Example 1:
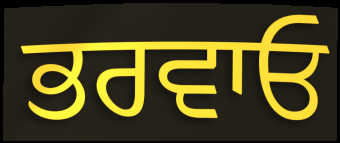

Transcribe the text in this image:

ਭਰਵਾਓ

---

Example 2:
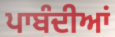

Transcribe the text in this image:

ਪਾਬੰਦੀਆਂ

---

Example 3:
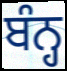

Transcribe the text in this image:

ਬੰਨ੍ਹ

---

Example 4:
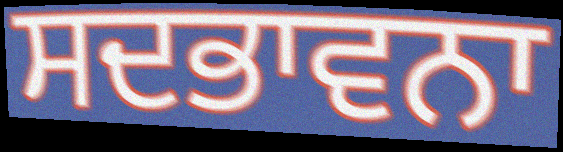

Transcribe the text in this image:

ਸਦਭਾਵਨਾ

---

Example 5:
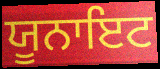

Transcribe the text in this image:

ਯੂਨਾਇਟ